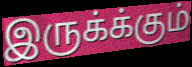
இருக்க்கும்